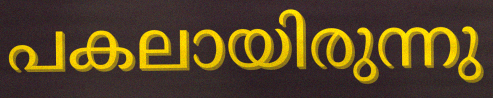
പകലായിരുന്നു